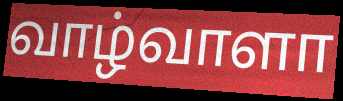
வாழ்வாளா